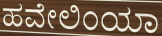
ಹವೇಲಿಂಯಾ